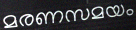
മരണസമയം